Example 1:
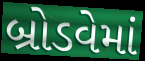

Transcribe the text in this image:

બ્રોડવેમાં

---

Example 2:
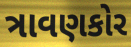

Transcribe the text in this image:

ત્રાવણકોર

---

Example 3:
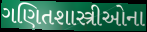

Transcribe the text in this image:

ગણિતશાસ્ત્રીઓના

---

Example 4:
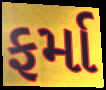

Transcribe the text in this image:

ફર્મા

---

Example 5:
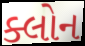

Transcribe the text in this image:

ક્લોન